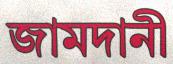
জামদানী